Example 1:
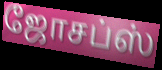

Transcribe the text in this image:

ஜோசப்ஸ்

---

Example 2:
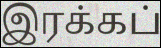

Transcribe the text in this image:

இரக்கப்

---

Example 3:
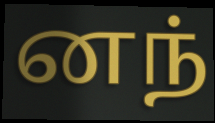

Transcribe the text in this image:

னந்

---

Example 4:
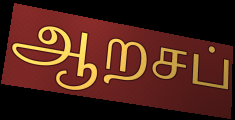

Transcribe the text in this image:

ஆறசப்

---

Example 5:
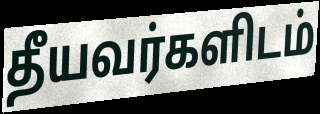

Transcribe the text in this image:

தீயவர்களிடம்